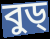
বুড্